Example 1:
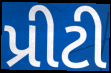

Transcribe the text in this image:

પ્રીટી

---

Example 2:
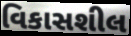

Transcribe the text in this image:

વિકાસશીલ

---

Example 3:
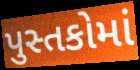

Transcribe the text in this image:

પુસ્તકોમાં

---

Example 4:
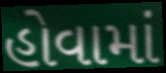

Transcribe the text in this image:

હોવામાં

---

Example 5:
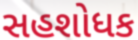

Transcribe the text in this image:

સહશોધક